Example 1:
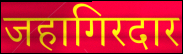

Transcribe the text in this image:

जहागिरदार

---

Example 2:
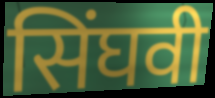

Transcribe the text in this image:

सिंघवी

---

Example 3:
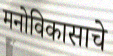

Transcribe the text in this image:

मनोविकासाचे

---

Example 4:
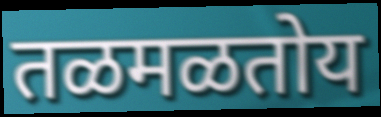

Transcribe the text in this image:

तळमळतोय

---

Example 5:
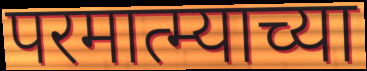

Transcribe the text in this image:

परमात्म्याच्या